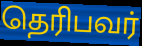
தெரிபவர்